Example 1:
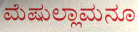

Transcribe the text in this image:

ಮೆಷುಲ್ಲಾಮನೂ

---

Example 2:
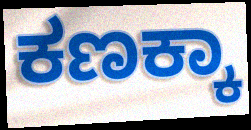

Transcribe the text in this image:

ಕಣಕ್ಕಾ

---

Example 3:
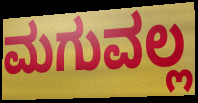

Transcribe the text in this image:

ಮಗುವಲ್ಲ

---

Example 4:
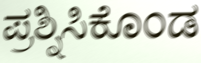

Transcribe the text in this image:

ಪ್ರಶ್ನಿಸಿಕೊಂಡ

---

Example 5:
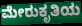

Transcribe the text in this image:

ಮೇರುಕೃತಿಯ